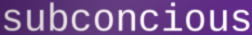
subconcious